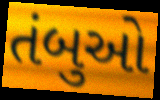
તંબુઓ